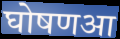
घोषणआ